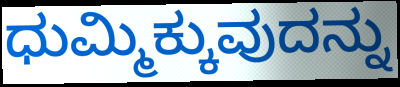
ಧುಮ್ಮಿಕ್ಕುವುದನ್ನು